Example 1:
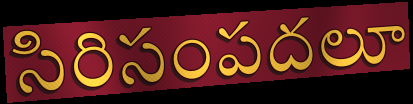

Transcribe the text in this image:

సిరిసంపదలూ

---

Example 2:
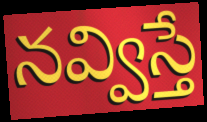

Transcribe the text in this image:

నవ్విస్తే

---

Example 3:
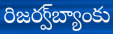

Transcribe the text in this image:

రిజర్వ్‌బ్యాంకు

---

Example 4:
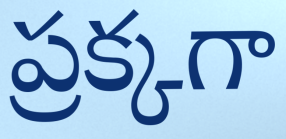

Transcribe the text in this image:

ప్రక్కగా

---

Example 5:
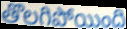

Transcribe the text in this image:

తొలగిపోయింది